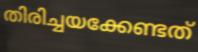
തിരിച്ചയക്കേണ്ടത്